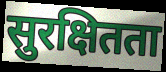
सुरक्षितता